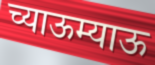
च्याऊम्याऊ